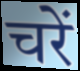
चरें